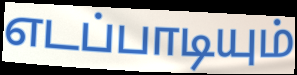
எடப்பாடியும்